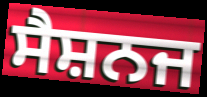
ਸੈਸ਼ਨਜ